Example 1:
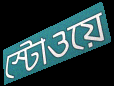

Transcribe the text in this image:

স্টোওয়ে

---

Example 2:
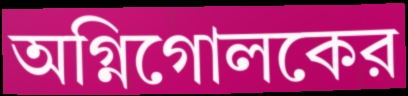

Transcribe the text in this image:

অগ্নিগোলকের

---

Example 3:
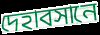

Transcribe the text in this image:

দেহাবসানে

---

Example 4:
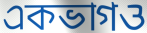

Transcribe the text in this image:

একভাগও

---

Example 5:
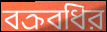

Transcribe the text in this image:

বক্রবধির